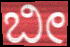
ಬೀ